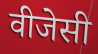
वीजेसी